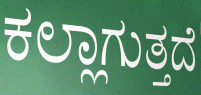
ಕಲ್ಲಾಗುತ್ತದೆ